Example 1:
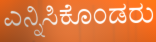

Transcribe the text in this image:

ಎನ್ನಿಸಿಕೊಂಡರು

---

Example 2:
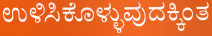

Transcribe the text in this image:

ಉಳಿಸಿಕೊಳ್ಳುವುದಕ್ಕಿಂತ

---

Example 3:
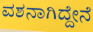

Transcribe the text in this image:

ವಶನಾಗಿದ್ದೇನೆ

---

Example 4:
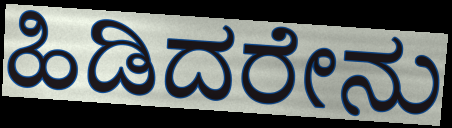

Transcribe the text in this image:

ಹಿಡಿದರೇನು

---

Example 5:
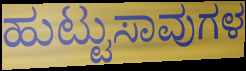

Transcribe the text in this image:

ಹುಟ್ಟುಸಾವುಗಳ